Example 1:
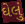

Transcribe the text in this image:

ઘેલું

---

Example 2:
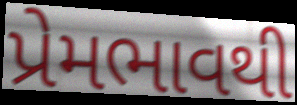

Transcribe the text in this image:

પ્રેમભાવથી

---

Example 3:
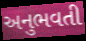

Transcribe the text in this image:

અનુભવતી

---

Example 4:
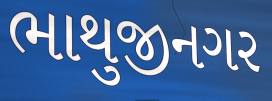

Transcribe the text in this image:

ભાથુજીનગર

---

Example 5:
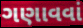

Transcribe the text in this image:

ગણાવવાં